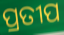
ପ୍ରତୀପ